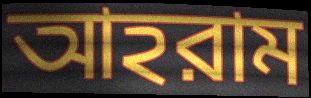
আহরাম